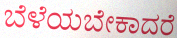
ಬೆಳೆಯಬೇಕಾದರೆ